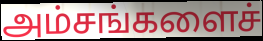
அம்சங்களைச்